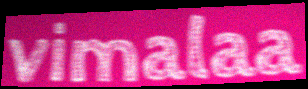
vimalaa